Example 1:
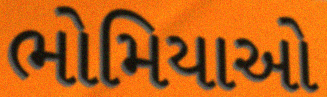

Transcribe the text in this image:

ભોમિયાઓ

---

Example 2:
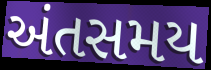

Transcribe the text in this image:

અંતસમય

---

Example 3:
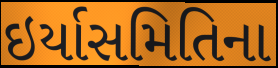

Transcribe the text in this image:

ઇર્યાસમિતિના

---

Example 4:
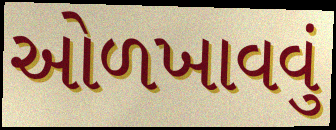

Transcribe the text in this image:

ઓળખાવવું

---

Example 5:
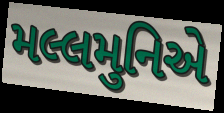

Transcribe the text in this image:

મલ્લમુનિએ